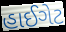
હાઈગેટ